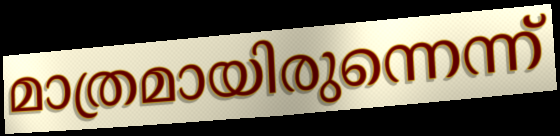
മാത്രമായിരുന്നെന്ന്